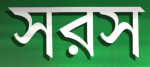
সরস